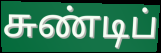
சுண்டிப்